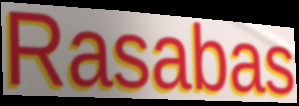
Rasabas